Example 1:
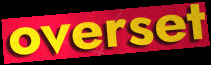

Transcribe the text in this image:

overset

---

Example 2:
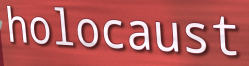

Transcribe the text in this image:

holocaust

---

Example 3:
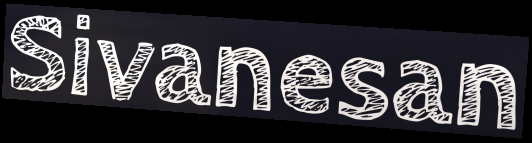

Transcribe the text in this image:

Sivanesan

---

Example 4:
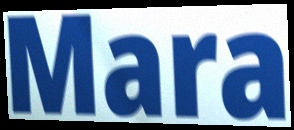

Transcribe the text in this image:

Mara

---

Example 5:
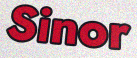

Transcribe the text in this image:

Sinor